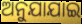
ଅନୁଯାଯାଇ